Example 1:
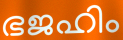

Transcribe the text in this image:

ഭജഹിം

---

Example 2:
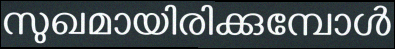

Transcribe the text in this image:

സുഖമായിരിക്കുമ്പോൾ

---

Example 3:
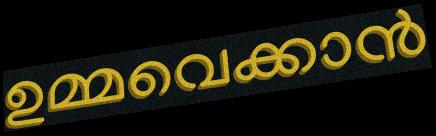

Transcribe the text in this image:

ഉമ്മവെക്കാൻ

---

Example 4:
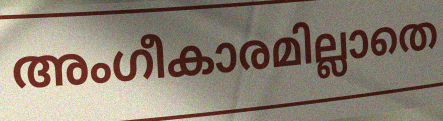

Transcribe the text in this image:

അംഗീകാരമില്ലാതെ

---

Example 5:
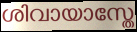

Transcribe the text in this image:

ശിവായാസ്തേ